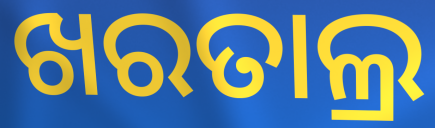
ଖରତାଲ୍ର